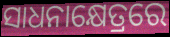
ସାଧନାକ୍ଷେତ୍ରରେ